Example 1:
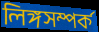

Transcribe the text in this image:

লিঙ্গসম্পর্ক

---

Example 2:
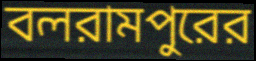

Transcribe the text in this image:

বলরামপুরের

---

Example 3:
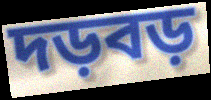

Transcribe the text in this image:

দড়বড়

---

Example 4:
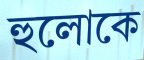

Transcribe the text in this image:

হুলোকে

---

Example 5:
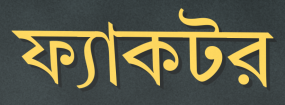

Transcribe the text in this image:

ফ্যাকটর